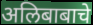
अलिबाबाचे